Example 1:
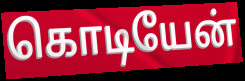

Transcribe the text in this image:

கொடியேன்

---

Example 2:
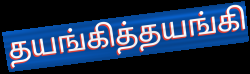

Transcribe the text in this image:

தயங்கித்தயங்கி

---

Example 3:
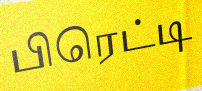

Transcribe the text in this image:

பிரெட்டி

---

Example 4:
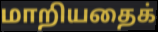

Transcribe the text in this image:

மாறியதைக்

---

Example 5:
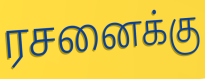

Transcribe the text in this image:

ரசனைக்கு